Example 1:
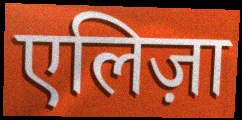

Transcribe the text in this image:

एलिज़ा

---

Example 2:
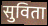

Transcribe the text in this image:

सुविता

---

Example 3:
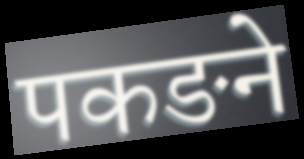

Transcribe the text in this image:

पकङने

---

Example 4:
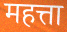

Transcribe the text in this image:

महत्ता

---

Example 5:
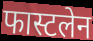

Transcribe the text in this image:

फास्टलेन